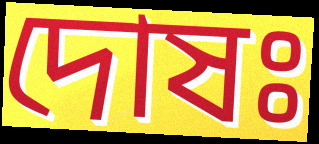
দোষঃ